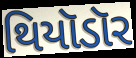
થિયૉડૉર